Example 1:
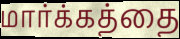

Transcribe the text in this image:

மார்க்கத்தை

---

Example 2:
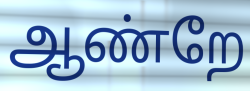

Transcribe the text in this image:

ஆண்றே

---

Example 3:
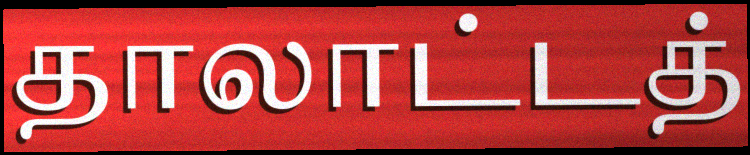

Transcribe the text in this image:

தாலாட்டத்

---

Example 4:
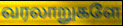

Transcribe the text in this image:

வரலாறுகளே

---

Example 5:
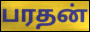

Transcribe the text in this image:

பரதன்